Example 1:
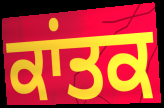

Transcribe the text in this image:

ਕਾਂਤਕ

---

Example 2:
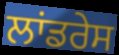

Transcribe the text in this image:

ਲਾਂਡਰੇਸ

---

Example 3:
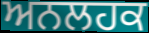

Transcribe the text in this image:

ਅਨਲਹਕ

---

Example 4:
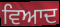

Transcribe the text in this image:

ਵਿਆਦ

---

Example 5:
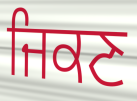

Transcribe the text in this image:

ਜਿਕਣ